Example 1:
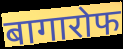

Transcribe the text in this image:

बागारोफ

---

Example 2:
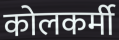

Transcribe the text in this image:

कोलकर्मी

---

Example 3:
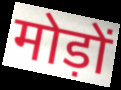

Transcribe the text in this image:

मोड़ों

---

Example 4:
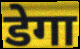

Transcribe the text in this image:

डेगा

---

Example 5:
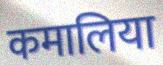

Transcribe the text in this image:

कमालिया